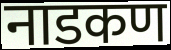
नाडकण